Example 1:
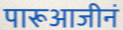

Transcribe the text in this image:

पारूआजीनं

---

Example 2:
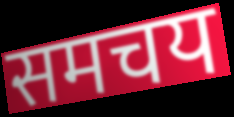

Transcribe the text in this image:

समचय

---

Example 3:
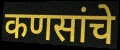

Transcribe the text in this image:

कणसांचे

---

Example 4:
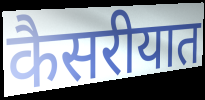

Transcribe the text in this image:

कैसरीयात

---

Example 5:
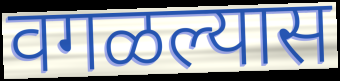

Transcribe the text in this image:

वगळल्यास